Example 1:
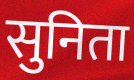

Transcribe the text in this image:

सुनिता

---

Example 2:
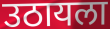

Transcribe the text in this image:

उठायला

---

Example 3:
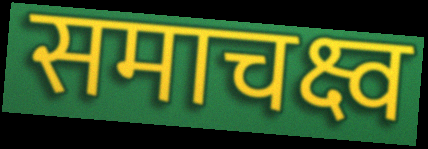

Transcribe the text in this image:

समाचक्ष्व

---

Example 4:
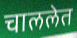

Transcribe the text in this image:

चाललेत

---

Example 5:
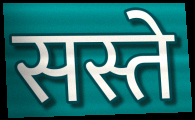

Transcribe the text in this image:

सस्ते